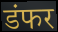
डंफर